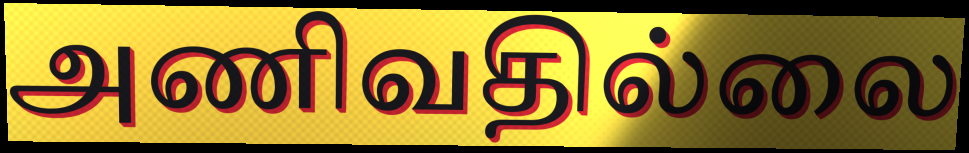
அணிவதில்லை